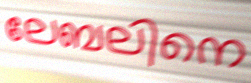
ലേബലിനെ